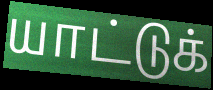
யாட்டுக்